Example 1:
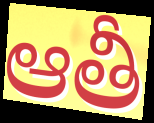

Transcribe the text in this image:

ఆతీ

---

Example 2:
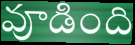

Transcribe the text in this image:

వూడింది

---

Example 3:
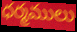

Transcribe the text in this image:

ధర్మములు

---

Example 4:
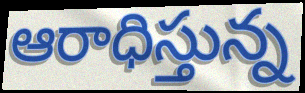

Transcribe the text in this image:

ఆరాధిస్తున్న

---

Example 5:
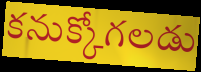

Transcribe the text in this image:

కనుక్కోగలడు